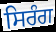
ਸਿਰੰਗ